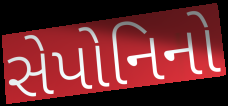
સેપોનિનો